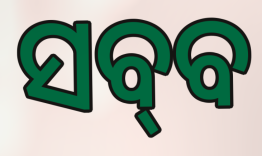
ସବ୍‌ବ